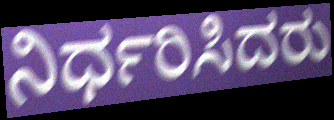
ನಿರ್ಧರಿಸಿದರು